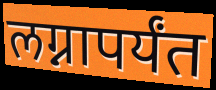
लग्नापर्यंत